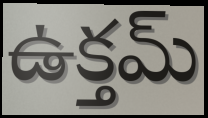
ఉక్తమ్